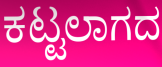
ಕಟ್ಟಲಾಗದ